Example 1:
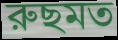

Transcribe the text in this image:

রুছমত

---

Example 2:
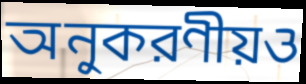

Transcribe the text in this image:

অনুকরণীয়ও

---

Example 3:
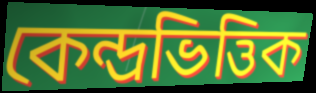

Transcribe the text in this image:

কেন্দ্রভিত্তিক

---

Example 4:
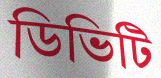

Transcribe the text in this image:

ডিভিটি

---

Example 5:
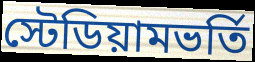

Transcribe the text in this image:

স্টেডিয়ামভর্তি